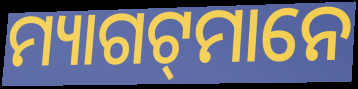
ମ୍ୟାଗଟ୍‌ମାନେ